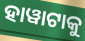
ହାୱାଟାକୁ